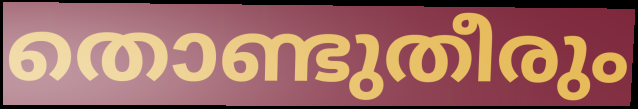
തൊണ്ടുതീരും